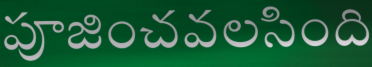
పూజించవలసింది